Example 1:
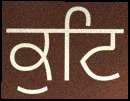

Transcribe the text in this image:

ਕੁਟਿ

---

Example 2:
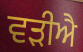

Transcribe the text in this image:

ਵੜੀਐ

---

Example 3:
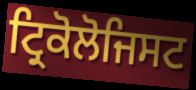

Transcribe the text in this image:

ਟ੍ਰਿਕੋਲੋਜਿਸਟ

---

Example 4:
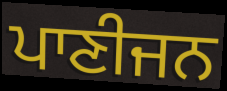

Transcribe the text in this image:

ਪਾਣੀਜਨ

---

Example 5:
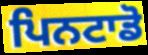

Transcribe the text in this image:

ਪਿਨਟਾਡੋ